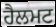
ਹੈਲਮਟ